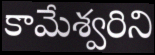
కామేశ్వరిని